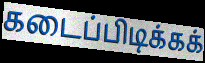
கடைப்பிடிக்கக்